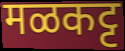
मळकट्ट